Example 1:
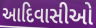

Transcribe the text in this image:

આદિવાસીઓ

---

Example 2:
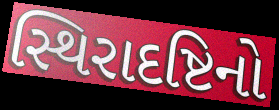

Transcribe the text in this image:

સ્થિરાદષ્ટિનો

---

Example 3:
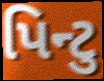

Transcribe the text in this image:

પિન્ટુ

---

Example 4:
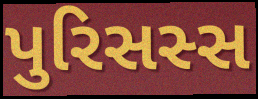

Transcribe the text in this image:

પુરિસસ્સ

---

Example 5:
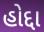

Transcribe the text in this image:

હોદ્દા